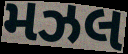
મઝલ